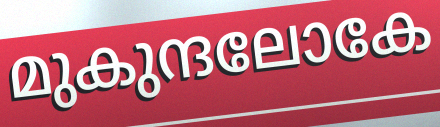
മുകുന്ദലോകേ